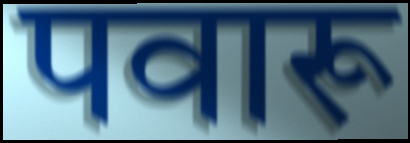
पवारू